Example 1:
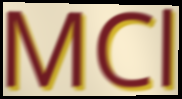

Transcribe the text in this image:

MCl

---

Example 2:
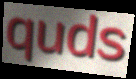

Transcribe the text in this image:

quds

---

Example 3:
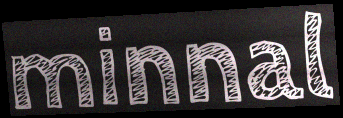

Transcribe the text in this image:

minnal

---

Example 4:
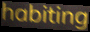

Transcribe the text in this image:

habiting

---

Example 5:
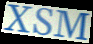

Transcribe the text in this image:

XSM